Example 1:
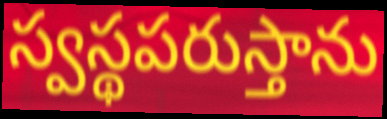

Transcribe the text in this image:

స్వస్థపరుస్తాను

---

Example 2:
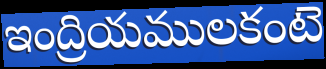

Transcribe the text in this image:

ఇంద్రియములకంటె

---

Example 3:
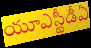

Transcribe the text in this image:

యూఎస్టీడీఏ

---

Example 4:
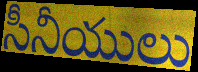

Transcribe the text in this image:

సీనీయులు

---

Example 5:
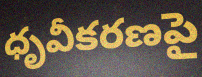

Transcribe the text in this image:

ధృవీకరణపై